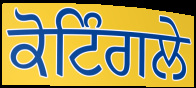
ਕੋਟਿੰਗਲੇ